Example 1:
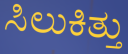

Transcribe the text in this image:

ಸಿಲುಕಿತ್ತು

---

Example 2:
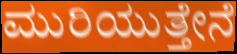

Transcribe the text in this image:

ಮುರಿಯುತ್ತೇನೆ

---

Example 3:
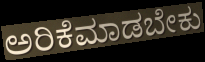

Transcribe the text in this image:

ಅರಿಕೆಮಾಡಬೇಕು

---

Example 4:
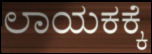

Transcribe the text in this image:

ಲಾಯಕಕ್ಕೆ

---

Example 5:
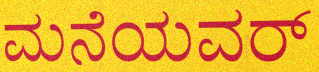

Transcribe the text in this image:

ಮನೆಯವರ್